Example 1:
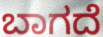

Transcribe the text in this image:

ಬಾಗದೆ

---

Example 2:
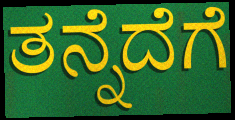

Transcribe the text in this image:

ತನ್ನೆದೆಗೆ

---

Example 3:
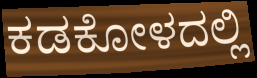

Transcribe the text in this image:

ಕಡಕೋಳದಲ್ಲಿ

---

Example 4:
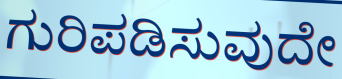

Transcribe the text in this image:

ಗುರಿಪಡಿಸುವುದೇ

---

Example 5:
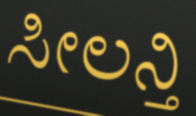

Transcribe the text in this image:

ಸೀಲನ್ತಿ